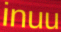
inuu